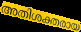
അതിശക്തരായ